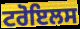
ਟਰੋਇਲਸ